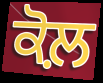
ਕੋਲ਼